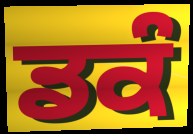
ਡਕੰ